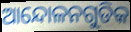
ଆନ୍ଦୋଳନଗୁଡିକ